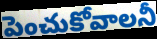
పెంచుకోవాలనీ